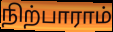
நிற்பாராம்